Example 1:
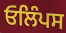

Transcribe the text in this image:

ਓਲਿੰਪਸ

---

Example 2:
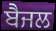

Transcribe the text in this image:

ਬੈਜਲ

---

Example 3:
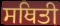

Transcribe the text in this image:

ਸਥਿਤੀ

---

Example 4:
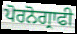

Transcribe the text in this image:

ਪੋਰਨੋਗ੍ਰਾਫੀ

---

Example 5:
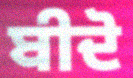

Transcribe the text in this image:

ਬੀਦੋ